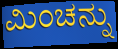
ಮಿಂಚನ್ನು